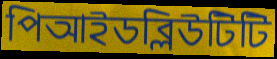
পিআইডব্লিউটিটি